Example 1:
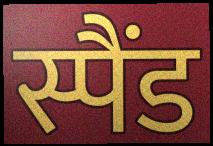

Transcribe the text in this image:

स्पैंड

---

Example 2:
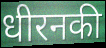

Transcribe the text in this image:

धीरनकी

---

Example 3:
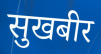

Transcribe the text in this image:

सुखबीर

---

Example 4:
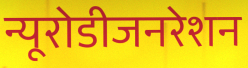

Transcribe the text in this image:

न्यूरोडीजनरेशन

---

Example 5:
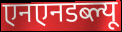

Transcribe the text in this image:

एनएनडब्ल्यू